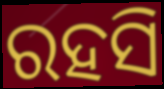
ରହସି